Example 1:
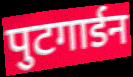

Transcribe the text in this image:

पुटगार्डन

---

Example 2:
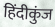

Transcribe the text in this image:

हिंदीकुंज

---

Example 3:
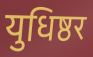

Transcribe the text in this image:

युधिष्ठर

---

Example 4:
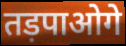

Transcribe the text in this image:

तड़पाओगे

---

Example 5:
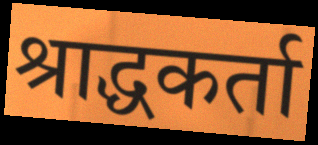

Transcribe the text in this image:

श्राद्धकर्ता